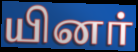
யினர்